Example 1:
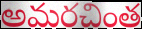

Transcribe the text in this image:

అమరచింత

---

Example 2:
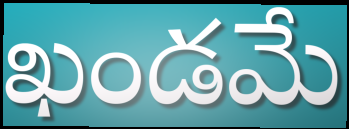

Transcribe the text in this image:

ఖండమే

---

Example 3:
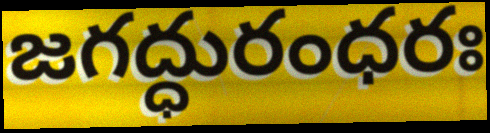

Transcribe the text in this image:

జగద్ధురంధరః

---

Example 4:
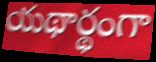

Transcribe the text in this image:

యథార్థంగా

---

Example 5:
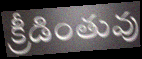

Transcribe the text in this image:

క్రీడింతువు